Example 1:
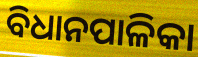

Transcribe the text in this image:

ବିଧାନପାଳିକା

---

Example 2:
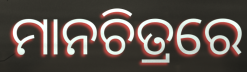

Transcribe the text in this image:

ମାନଚିତ୍ରରେ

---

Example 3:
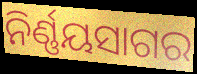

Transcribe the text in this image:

ନିର୍ଣ୍ଣୟସାଗର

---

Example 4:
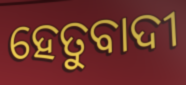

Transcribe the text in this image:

ହେତୁବାଦୀ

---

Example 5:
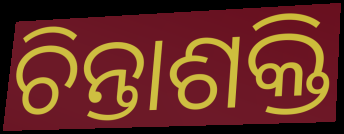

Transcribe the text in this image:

ଚିନ୍ତାଶକ୍ତି